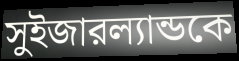
সুইজারল্যান্ডকে